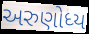
અરુણોધ્ય